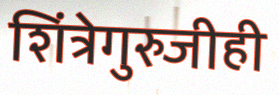
शिंत्रेगुरुजीही